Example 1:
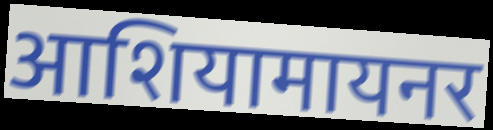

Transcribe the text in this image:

आशियामायनर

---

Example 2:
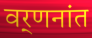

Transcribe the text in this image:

वर्णनांत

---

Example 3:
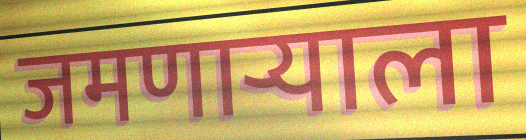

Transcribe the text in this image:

जमणाऱ्याला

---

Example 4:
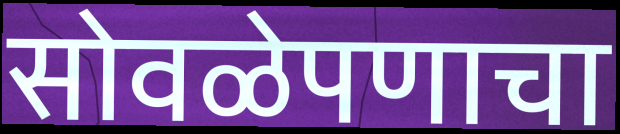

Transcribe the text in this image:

सोवळेपणाचा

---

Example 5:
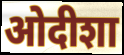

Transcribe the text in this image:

ओदीशा